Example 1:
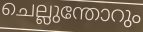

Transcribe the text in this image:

ചെല്ലുന്തോറും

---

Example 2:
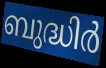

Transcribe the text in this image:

ബുദ്ധിർ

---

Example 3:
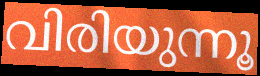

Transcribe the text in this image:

വിരിയുന്നൂ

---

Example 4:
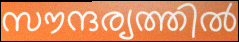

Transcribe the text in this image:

സൗന്ദര്യത്തിൽ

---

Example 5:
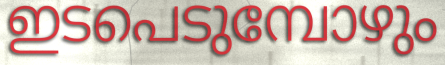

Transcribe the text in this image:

ഇടപെടുമ്പോഴും